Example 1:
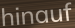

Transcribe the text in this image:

hinauf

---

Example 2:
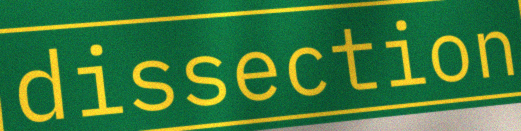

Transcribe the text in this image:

dissection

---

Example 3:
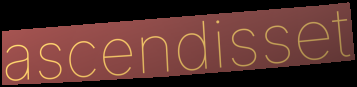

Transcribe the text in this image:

ascendisset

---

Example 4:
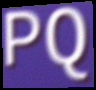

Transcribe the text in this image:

PQ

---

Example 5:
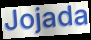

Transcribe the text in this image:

Jojada